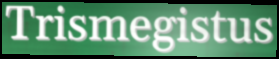
Trismegistus